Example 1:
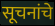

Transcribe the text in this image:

सूचनांचे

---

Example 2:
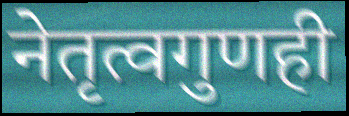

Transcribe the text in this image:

नेतृत्वगुणही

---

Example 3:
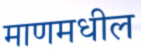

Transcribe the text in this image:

माणमधील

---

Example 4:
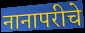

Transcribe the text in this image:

नानापरीचे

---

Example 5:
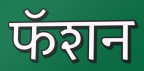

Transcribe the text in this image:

फॅशन